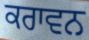
ਕਰਾਵਨ